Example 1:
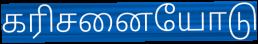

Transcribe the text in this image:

கரிசனையோடு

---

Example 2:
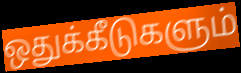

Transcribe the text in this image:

ஒதுக்கீடுகளும்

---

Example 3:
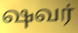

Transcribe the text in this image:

ஷவர்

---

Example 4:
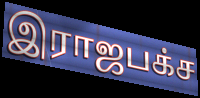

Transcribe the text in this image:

இராஜபக்ச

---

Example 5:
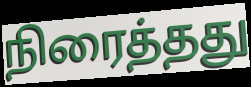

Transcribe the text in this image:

நிரைத்தது